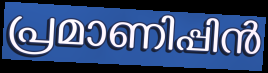
പ്രമാണിപ്പിൻ